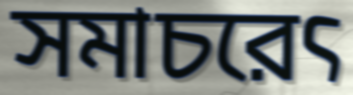
সমাচরেৎ